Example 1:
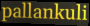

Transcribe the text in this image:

pallankuli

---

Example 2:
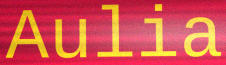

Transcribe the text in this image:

Aulia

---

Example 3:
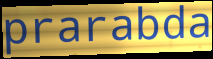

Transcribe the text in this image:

prarabda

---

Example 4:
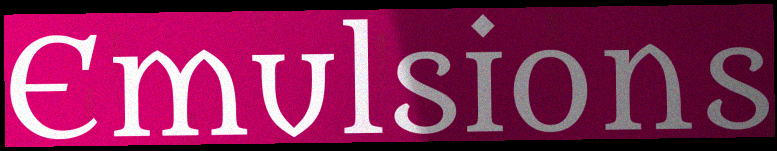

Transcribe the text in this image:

Emulsions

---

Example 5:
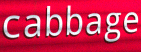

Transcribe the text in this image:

cabbage